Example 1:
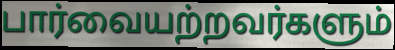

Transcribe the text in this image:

பார்வையற்றவர்களும்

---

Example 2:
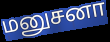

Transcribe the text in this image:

மனுசனா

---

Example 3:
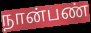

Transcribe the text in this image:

நான்பண்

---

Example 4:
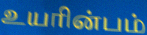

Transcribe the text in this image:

உயரின்பம்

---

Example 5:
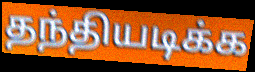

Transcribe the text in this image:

தந்தியடிக்க